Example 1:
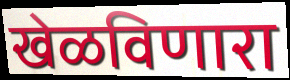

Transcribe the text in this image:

खेळविणारा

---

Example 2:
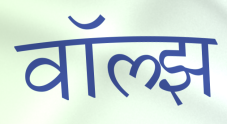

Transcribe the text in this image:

वॉल्झ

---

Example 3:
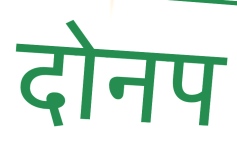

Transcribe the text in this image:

दोनप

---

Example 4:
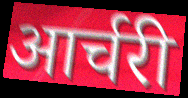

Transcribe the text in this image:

आर्चरी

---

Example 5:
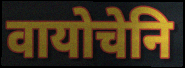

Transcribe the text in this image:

वायोचेनि